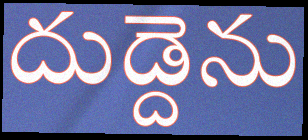
దుడ్దెను